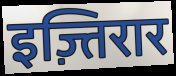
इज़्तिरार